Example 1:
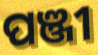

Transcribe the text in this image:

ପଞ୍ଜୀ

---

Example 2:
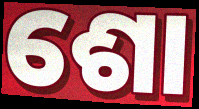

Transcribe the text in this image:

ଶୋ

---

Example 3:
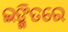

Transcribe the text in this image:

ଇଙ୍ଗିତରେ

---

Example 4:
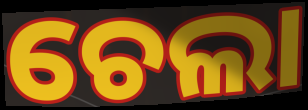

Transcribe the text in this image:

ଚେଲା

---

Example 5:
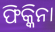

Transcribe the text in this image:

ଫିକ୍କିନା